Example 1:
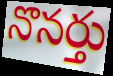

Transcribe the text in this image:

నొనర్తు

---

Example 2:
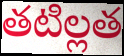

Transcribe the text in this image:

తటిల్లత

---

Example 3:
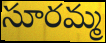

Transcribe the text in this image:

సూరమ్మ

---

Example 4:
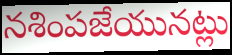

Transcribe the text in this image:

నశింపజేయునట్లు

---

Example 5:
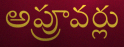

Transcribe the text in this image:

అప్రూవర్లు